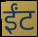
ईंट